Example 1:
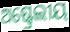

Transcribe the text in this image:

ଅଷ୍ଟ୍ରେଲୀୟ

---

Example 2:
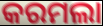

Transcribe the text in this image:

କରମଲା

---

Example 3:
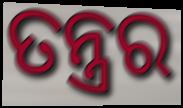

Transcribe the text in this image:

ତନ୍ତ୍ରର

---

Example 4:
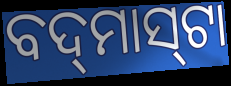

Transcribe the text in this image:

ବଦ୍‌ମାସ୍‌ଟା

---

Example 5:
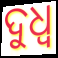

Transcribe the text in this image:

ଦୁଧ୍ଵ